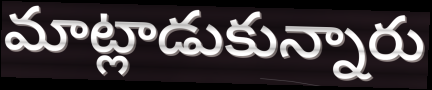
మాట్లాడుకున్నారు